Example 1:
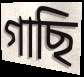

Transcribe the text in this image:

গাছি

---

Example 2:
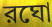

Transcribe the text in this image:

রঘো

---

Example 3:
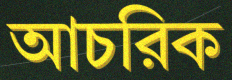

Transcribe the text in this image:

আচরিক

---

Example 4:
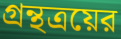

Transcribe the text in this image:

গ্রন্থত্রয়ের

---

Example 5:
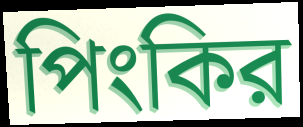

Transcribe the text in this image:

পিংকির